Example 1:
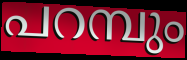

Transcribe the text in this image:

പറമ്പും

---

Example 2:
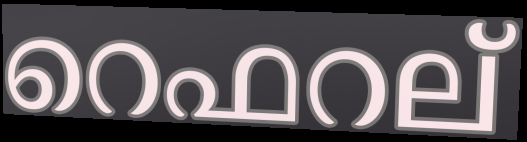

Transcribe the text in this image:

റെഫറല്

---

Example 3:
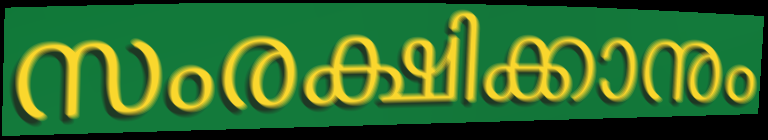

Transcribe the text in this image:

സംരക്ഷിക്കാനും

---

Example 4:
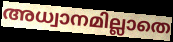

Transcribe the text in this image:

അധ്വാനമില്ലാതെ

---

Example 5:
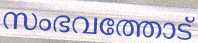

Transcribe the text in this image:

സംഭവത്തോട്